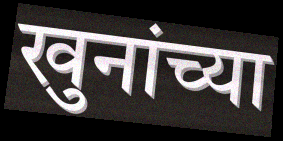
खुनांच्या